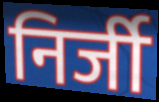
निर्जी